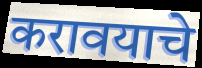
करावयाचे